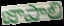
జాపాలి